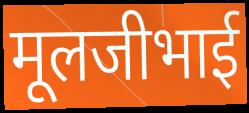
मूलजीभाई